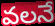
వలనే